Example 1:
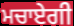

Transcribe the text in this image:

ਮਚਾਏਗੀ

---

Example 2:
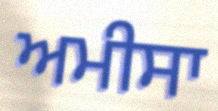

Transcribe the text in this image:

ਅਮੀਸਾ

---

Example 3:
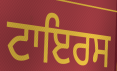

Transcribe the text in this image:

ਟਾਇਰਸ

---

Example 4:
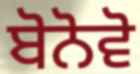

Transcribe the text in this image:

ਬੋਨੋਵੋ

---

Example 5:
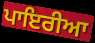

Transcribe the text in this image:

ਪਾਇਰੀਆ